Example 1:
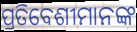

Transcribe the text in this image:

ପ୍ରତିବେଶୀମାନଙ୍କ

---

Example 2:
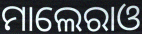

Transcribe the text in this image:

ମାଲେରାଓ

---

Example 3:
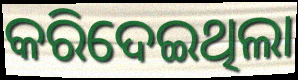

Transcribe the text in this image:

କରିଦେଇଥିଲା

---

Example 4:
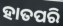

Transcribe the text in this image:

ହାତପରି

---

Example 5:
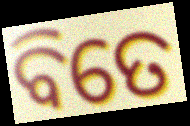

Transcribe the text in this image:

ବିତେ